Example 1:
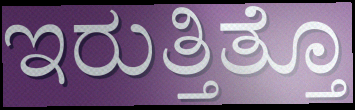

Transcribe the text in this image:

ಇರುತ್ತಿತ್ತೊ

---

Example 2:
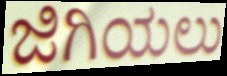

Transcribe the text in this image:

ಜಿಗಿಯಲು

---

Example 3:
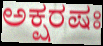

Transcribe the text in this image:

ಅಕ್ಷರಷಃ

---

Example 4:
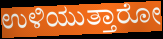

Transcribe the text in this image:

ಉಳಿಯುತ್ತಾರೋ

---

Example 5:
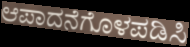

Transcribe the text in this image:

ಆಪಾದನೆಗೊಳಪಡಿಸಿ